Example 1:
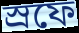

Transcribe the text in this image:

স্রফে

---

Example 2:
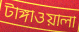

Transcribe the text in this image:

টাঙ্গাওয়ালা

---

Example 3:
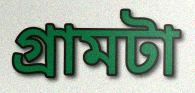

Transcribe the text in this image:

গ্রামটা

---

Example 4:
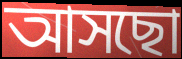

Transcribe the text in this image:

আসছো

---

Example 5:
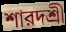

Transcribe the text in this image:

শারদশ্রী